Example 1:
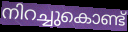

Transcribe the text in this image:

നിറച്ചുകൊണ്ട്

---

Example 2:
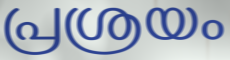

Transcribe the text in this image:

പ്രശ്രയം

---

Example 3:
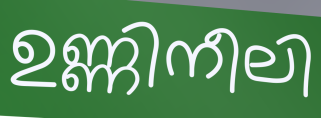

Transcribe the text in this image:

ഉണ്ണിനീലി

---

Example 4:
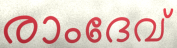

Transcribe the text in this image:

രാംദേവ്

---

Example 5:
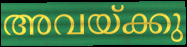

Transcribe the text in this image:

അവയ്ക്കു